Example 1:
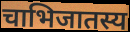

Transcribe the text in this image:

चाभिजातस्य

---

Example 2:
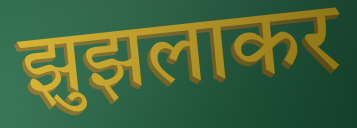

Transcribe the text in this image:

झुझलाकर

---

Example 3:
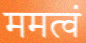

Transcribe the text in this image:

ममत्वं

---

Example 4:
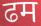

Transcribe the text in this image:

ढम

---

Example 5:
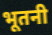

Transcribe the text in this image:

भूतनी